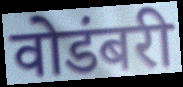
वोडंबरी